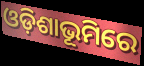
ଓଡ଼ିଶାଭୂମିରେ